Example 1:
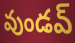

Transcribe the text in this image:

వుండవ్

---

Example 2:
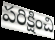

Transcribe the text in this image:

పరిక్షించి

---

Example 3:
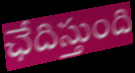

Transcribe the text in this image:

ఛేదిస్తుంది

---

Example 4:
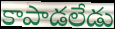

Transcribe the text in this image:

కాపాడలేడు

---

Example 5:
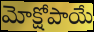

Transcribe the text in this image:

మోక్షోపాయే